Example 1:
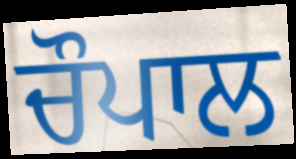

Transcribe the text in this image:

ਚੌਪਾਲ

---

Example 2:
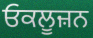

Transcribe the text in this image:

ਓਕਲੂਜ਼ਨ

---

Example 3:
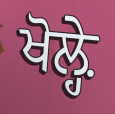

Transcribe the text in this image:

ਖੋਲ਼੍ਹੇ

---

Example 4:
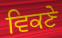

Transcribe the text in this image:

ਵਿਕਣੇ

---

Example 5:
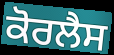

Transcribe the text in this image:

ਕੋਰਲੈਸ